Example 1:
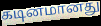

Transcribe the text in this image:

கடினமானது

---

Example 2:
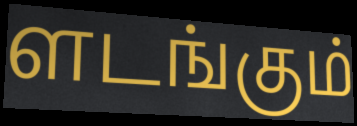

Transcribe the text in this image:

ளடங்கும்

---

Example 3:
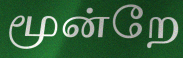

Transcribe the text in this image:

மூன்றே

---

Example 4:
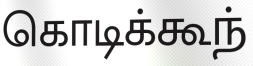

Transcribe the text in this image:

கொடிக்கூந்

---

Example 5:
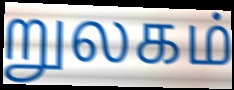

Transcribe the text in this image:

றுலகம்